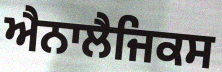
ਐਨਾਲੈਜਿਕਸ